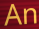
An